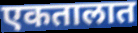
एकतालात